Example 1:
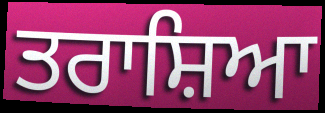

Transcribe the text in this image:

ਤਰਾਸ਼ਿਆ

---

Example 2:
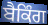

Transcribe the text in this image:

ਬੈਕਿੰਗ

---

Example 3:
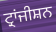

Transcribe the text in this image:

ਟ੍ਰਾਂਜੀਸ਼ਨ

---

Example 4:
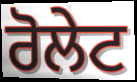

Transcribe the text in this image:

ਰੋਲੇਟ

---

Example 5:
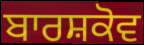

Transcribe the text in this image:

ਬਾਰਸ਼ਕੋਵ